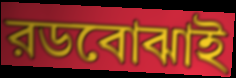
রডবোঝাই